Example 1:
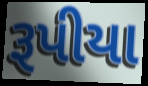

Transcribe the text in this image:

રૂપીયા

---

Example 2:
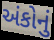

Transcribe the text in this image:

અંકોનું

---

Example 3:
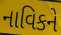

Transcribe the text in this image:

નાવિકને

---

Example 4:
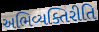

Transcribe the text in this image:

અભિવ્યક્તિરીતિ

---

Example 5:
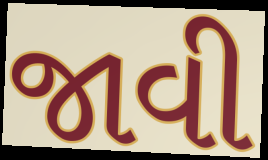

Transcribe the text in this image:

જાવી